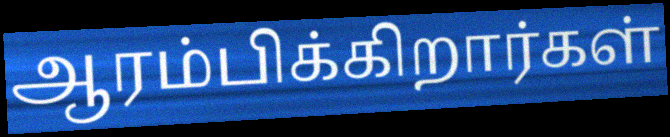
ஆரம்பிக்கிறார்கள்